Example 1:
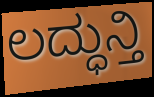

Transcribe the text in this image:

ಲದ್ಧುನ್ತಿ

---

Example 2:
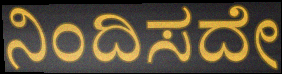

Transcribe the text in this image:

ನಿಂದಿಸದೇ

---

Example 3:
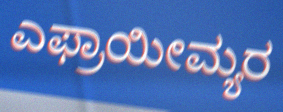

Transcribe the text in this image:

ಎಫ್ರಾಯೀಮ್ಯರ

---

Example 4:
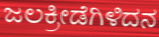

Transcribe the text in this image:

ಜಲಕ್ರೀಡೆಗಿಳಿದನ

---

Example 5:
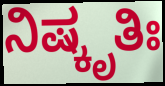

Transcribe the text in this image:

ನಿಷ್ಕೃತಿಃ